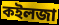
কইলজা